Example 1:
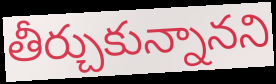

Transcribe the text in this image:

తీర్చుకున్నానని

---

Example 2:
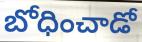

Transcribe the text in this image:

బోధించాడో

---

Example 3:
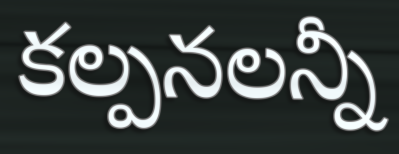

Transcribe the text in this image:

కల్పనలన్నీ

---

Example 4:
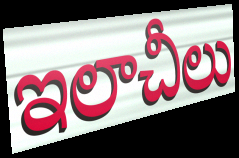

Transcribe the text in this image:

ఇలాచీలు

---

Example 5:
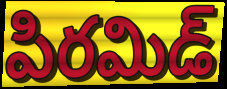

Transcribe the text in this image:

పిరమిడ్